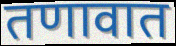
तणावात